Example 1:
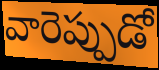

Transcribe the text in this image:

వారెప్పుడో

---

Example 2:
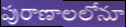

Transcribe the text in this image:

పురాణాలలోనూ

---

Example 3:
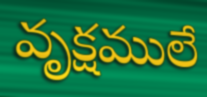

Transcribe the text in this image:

వృక్షములే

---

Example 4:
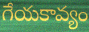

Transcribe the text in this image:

గేయకావ్యం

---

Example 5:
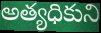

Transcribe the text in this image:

అత్యధికుని